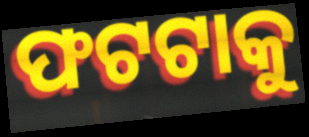
ଫଟଟାକୁ